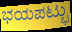
ಭಯಪಟ್ಟು